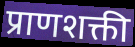
प्राणशक्ती